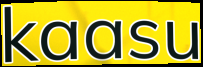
kaasu